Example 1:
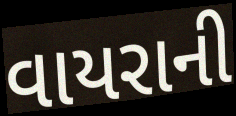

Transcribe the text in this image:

વાયરાની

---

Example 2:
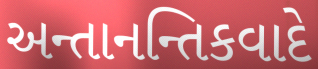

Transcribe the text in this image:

અન્તાનન્તિકવાદે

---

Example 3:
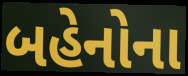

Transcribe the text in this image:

બહેનોના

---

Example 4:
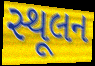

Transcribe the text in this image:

સ્થૂલન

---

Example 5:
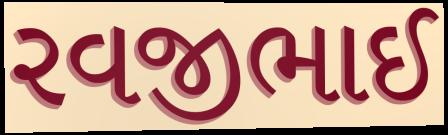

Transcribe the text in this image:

રવજીભાઈ